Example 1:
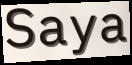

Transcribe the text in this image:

Saya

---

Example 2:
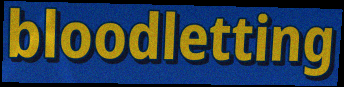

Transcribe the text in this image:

bloodletting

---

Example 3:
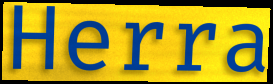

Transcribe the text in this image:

Herra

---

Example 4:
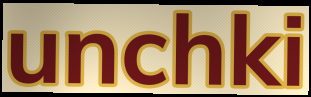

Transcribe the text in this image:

unchki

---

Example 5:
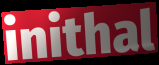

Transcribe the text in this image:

inithal